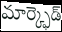
మార్క్ఫెడ్